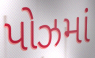
પોઝમાં